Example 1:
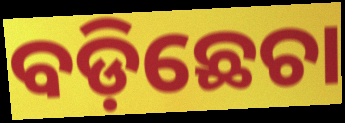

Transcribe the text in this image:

ବଡ଼ିଛେଚା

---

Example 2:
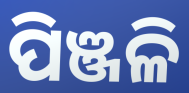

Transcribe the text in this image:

ପିଞ୍ଜଳି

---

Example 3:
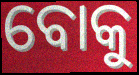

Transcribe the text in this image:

ବୋକୁ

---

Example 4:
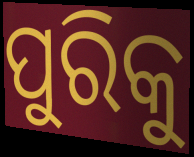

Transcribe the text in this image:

ପୁରିକୁ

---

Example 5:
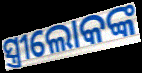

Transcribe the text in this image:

ସ୍ତ୍ରୀଲୋକଙ୍କ